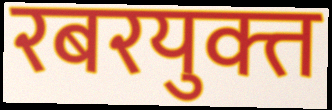
रबरयुक्त